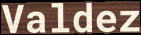
Valdez